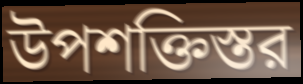
উপশক্তিস্তর